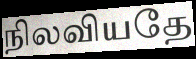
நிலவியதே